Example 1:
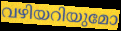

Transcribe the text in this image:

വഴിയറിയുമോ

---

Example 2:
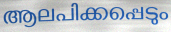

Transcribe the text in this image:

ആലപിക്കപ്പെടും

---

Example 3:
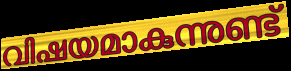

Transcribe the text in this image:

വിഷയമാകുന്നുണ്ട്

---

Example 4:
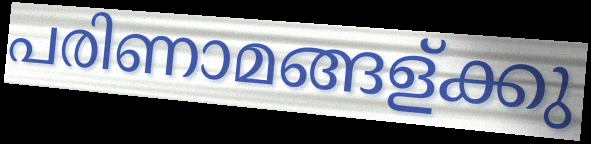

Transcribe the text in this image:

പരിണാമങ്ങള്ക്കു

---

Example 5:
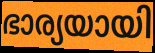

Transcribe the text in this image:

ഭാര്യയായി